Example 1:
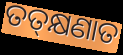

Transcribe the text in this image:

ତତ୍‌କ୍ଷଣାତ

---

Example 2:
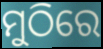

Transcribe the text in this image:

ମୁଠିରେ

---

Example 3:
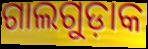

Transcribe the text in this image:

ଗାଲଗୁଡ଼ାକ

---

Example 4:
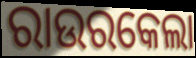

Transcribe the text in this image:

ରାଉରକେଲା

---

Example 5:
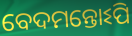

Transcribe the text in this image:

ବେଦମନ୍ତୋଽପି